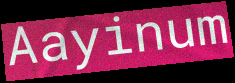
Aayinum